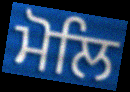
ਮੋਲਿ